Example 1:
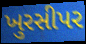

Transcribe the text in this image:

ખુરસીપર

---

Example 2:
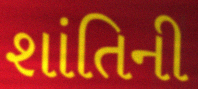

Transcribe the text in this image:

શાંતિની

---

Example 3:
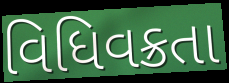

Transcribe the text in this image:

વિધિવક્રતા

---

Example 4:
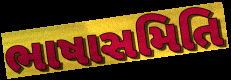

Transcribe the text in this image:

ભાષાસમિતિ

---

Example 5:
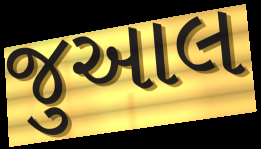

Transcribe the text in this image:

જુઆલ